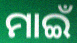
ମାଇଁ